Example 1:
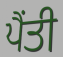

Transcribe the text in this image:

ਪੈਂਤੀ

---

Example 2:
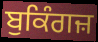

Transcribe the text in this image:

ਬੁਕਿੰਗਜ਼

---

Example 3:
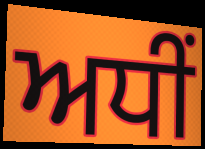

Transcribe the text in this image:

ਅਧੀਂ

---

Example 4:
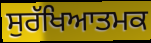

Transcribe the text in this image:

ਸੁਰੱਖਿਆਤਮਕ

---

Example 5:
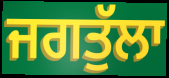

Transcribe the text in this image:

ਜਗਤੁੱਲਾ